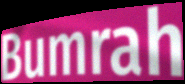
Bumrah